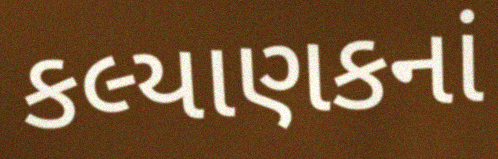
કલ્યાણકનાં